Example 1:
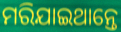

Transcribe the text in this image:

ମରିଯାଇଥାନ୍ତେ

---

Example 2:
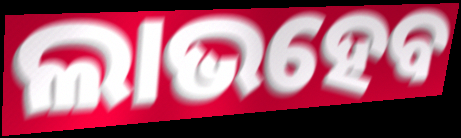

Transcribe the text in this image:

ଲାଭହେବ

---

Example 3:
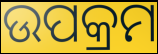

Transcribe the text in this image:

ଉପକ୍ରମ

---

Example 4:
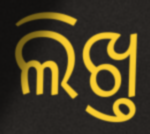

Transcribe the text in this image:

ଲିଖ୍ତ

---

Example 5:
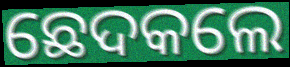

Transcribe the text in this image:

ଛେଦକଲେ